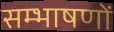
सम्भाषणों